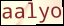
aalyo